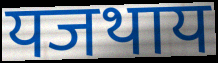
यजथाय